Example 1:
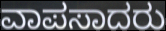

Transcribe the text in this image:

ವಾಪಸಾದರು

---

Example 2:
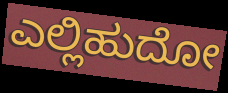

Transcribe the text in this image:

ಎಲ್ಲಿಹುದೋ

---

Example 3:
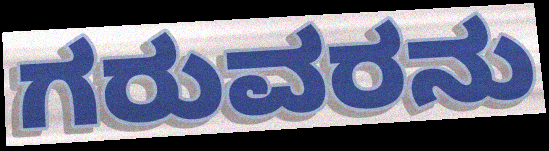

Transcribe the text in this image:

ಗರುವರನು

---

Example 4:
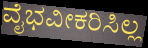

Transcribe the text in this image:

ವೈಭವೀಕರಿಸಿಲ್ಲ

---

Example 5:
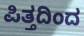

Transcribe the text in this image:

ಪಿತ್ತದಿಂದ